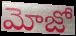
మోజో